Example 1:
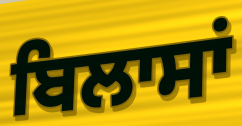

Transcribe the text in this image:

ਬਿਲਾਸਾਂ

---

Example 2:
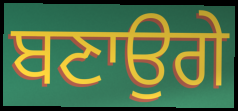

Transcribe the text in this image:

ਬਣਾਉਗੇ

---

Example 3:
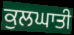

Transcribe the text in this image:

ਕੁਲਘਾਤੀ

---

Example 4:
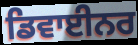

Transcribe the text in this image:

ਡਿਵਾਈਨਰ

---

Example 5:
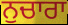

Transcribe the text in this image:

ਨੁਚਾਰਾ